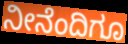
ನೀನೆಂದಿಗೂ